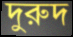
দুরুদ